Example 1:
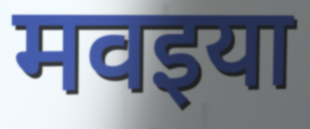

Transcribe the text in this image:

मवइया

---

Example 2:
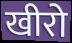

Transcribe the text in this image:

खीरो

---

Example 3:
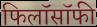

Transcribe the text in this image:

फिलॉसॉफी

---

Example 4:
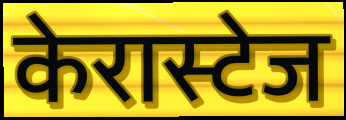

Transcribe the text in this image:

केरास्टेज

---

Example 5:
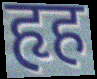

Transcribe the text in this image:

हृह